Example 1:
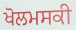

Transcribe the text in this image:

ਖੋਲਮਸਕੀ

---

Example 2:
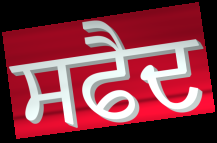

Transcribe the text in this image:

ਸਫੈਦ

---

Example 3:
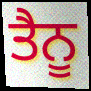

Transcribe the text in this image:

ਤੈਨੂ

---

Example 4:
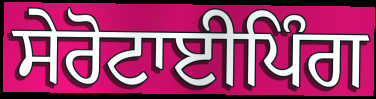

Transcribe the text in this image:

ਸੇਰੋਟਾਈਪਿੰਗ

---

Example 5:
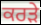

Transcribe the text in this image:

ਕਰੜੇ